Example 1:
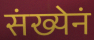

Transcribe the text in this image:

संख्येनं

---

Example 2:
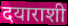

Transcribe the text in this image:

दयाराशी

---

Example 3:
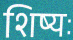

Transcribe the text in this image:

शिष्यः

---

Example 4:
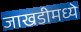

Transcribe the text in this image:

जाखडीमध्ये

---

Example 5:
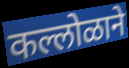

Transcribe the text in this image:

कल्लोळाने